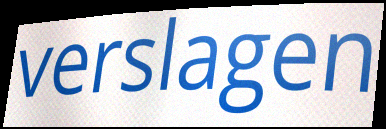
verslagen